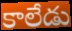
కాలేడు